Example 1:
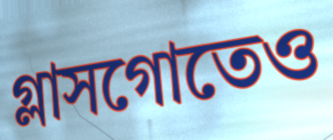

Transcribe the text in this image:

গ্লাসগোতেও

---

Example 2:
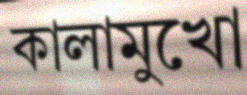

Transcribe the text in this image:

কালামুখো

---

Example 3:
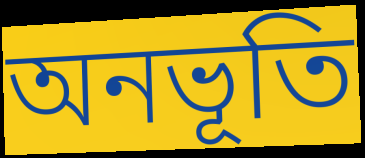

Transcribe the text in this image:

অনভূতি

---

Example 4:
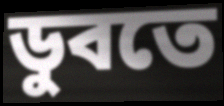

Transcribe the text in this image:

ডুবতে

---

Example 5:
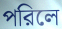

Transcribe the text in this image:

পরিলে